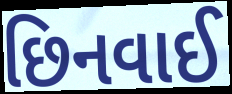
છિનવાઈ